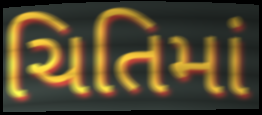
ચિતિમાં